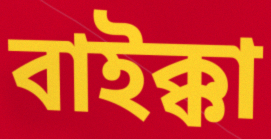
বাইক্কা